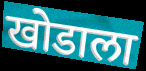
खोडाला